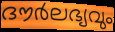
ദൗർലഭ്യവും